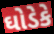
ઘોડેકે